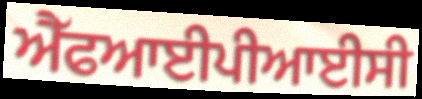
ਐੱਫਆਈਪੀਆਈਸੀ